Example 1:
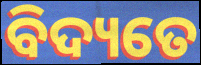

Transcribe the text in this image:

ବିଦ୍ୟତେ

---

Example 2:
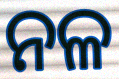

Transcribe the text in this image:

ନଳ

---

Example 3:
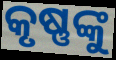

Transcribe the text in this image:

କୃଷ୍ଣଙ୍କୁ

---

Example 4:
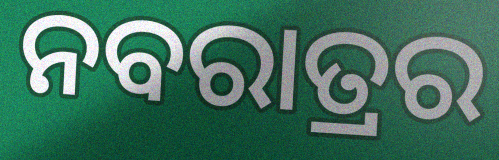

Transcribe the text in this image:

ନବରାତ୍ରର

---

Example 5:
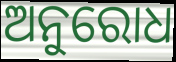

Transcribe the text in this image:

ଅନୁରୋଧ